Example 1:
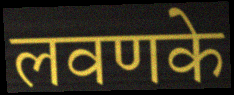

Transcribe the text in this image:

लवणके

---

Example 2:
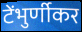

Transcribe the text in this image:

टेंभुर्णीकर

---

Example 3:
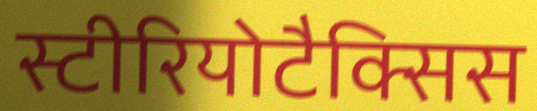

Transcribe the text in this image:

स्टीरियोटैक्सिस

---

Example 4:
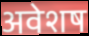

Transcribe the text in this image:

अवेशष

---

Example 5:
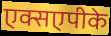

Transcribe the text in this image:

एक्सएपीके